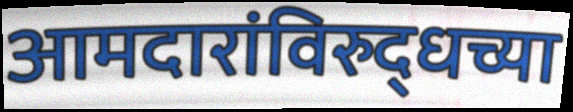
आमदारांविरुद्धच्या